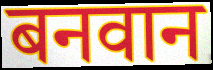
बनवान